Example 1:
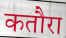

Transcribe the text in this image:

कतौरा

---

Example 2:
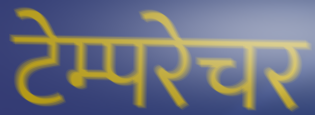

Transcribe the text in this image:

टेम्परेचर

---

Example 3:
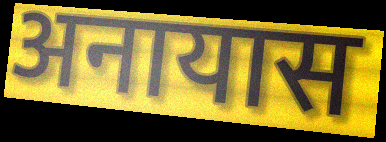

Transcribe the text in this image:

अनायास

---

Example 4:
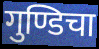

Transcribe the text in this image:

गुण्डिचा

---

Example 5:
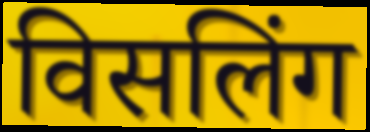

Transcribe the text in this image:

विसलिंग